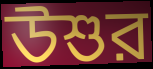
উশুর